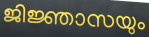
ജിജ്ഞാസയും